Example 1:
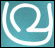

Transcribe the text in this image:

വ്ര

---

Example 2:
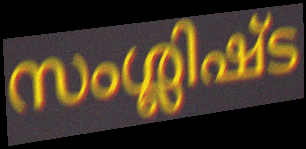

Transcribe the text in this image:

സംശ്ലിഷ്ട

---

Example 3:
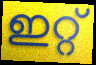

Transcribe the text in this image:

ഇറ്റ്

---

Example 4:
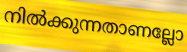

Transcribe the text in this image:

നിൽക്കുന്നതാണല്ലോ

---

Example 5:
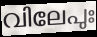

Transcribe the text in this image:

വിലേപുഃ